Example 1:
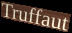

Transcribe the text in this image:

Truffaut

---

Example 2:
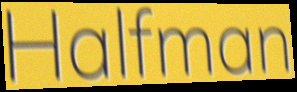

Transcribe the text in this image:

Halfman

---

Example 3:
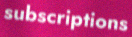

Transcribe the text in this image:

subscriptions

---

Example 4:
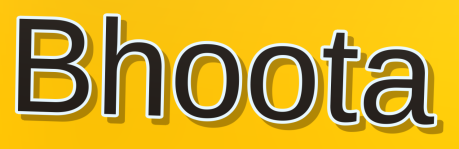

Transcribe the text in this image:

Bhoota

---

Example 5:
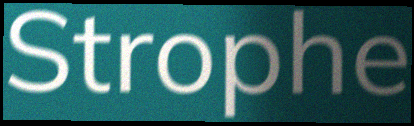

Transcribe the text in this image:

Strophe